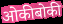
ओकीबोकी